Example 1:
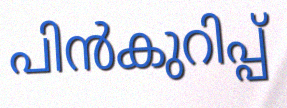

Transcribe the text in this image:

പിൻകുറിപ്പ്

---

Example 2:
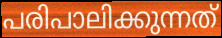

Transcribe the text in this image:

പരിപാലിക്കുന്നത്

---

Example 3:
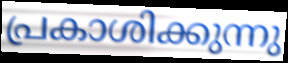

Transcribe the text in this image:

പ്രകാശിക്കുന്നു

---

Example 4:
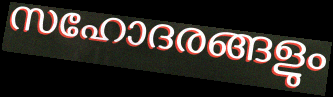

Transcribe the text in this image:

സഹോദരങ്ങളും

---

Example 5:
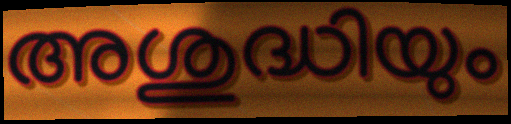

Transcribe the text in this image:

അശുദ്ധിയും